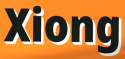
Xiong